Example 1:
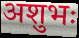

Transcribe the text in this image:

अशुभः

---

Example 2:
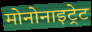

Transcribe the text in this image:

मोनोनाइट्रेट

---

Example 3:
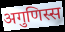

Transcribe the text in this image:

अगुणिस्स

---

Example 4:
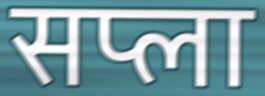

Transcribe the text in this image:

सप्ला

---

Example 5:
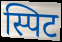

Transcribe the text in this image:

स्पिट